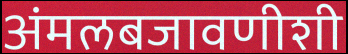
अंमलबजावणीशी